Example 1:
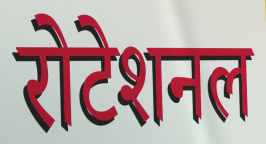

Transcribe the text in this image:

रोटेशनल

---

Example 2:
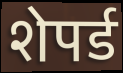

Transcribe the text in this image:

शेपर्ड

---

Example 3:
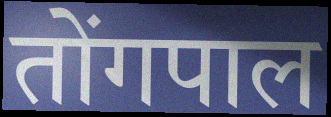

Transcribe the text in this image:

तोंगपाल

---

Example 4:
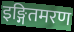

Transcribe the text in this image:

इङ्गितमरण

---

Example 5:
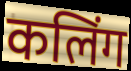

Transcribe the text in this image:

कलिंग